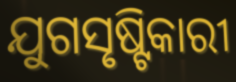
ଯୁଗସୃଷ୍ଟିକାରୀ